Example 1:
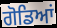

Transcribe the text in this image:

ਗੋਡਿਆਂ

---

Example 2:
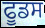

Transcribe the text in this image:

ਫੂਡਸ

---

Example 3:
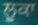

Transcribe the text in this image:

ਲੂਕਾ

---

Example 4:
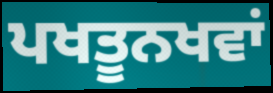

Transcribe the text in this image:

ਪਖਤੂਨਖਵਾਂ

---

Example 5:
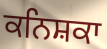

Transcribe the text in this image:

ਕਨਿਸ਼ਕਾ